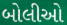
બોલીઓ